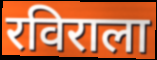
रविराला